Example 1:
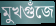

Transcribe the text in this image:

মুখগুঁজে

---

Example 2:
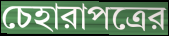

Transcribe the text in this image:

চেহারাপত্রের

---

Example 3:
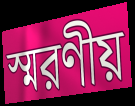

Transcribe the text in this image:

স্মরণীয়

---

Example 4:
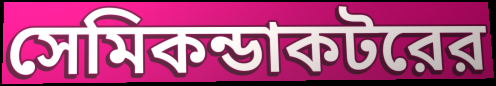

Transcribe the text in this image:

সেমিকন্ডাকটরের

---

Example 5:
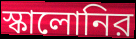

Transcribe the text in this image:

স্কালোনির